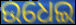
ଉଧେଇ